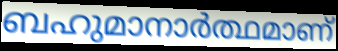
ബഹുമാനാർത്ഥമാണ്